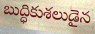
బుద్ధికుశలుడైన